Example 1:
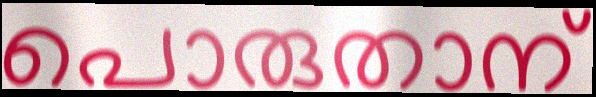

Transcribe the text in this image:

പൊരുതാന്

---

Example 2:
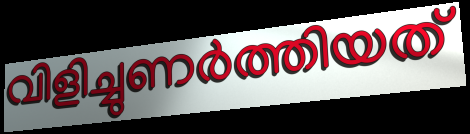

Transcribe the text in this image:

വിളിച്ചുണർത്തിയത്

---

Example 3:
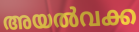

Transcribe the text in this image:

അയൽവക്ക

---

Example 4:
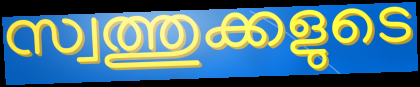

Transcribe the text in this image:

സ്വത്തുക്കളുടെ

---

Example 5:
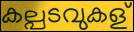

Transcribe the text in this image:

കല്പടവുകള്